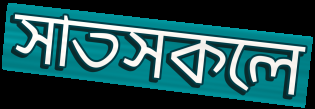
সাতসকলে